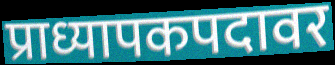
प्राध्यापकपदावर